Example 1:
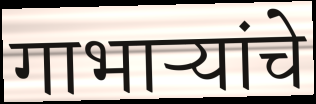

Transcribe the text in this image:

गाभाऱ्यांचे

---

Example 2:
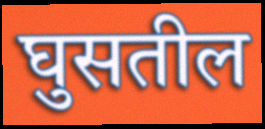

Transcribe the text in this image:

घुसतील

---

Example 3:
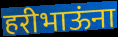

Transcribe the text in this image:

हरीभाऊंना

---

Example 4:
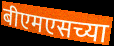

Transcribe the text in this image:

बीएमएसच्या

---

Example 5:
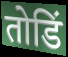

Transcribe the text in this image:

तोडिं